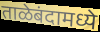
ताळेबंदामध्ये